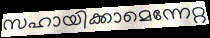
സഹായിക്കാമെന്നേറ്റ